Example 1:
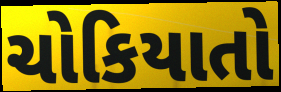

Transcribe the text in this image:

ચોકિયાતો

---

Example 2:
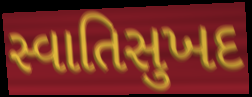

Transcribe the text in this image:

સ્વાતિસુખદ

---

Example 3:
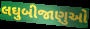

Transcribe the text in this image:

લઘુબીજાણુઓ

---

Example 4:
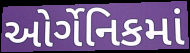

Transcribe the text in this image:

ઓર્ગેનિકમાં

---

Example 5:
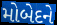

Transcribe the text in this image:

મોબેદને